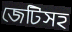
জেটিসহ